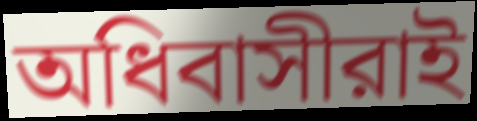
অধিবাসীরাই